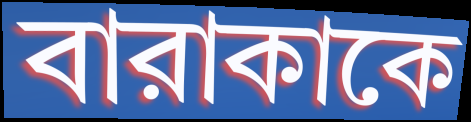
বারাকাকে